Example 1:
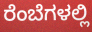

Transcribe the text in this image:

ರೆಂಬೆಗಳಲ್ಲಿ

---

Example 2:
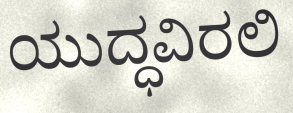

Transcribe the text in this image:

ಯುದ್ಧವಿರಲಿ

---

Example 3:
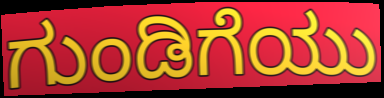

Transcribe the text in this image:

ಗುಂಡಿಗೆಯು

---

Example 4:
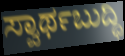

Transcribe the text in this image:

ಸ್ವಾರ್ಥಬುದ್ಧಿ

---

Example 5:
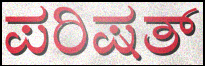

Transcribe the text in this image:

ಪರಿಷತ್